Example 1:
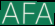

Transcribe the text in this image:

AFA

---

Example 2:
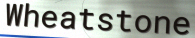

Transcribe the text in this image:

Wheatstone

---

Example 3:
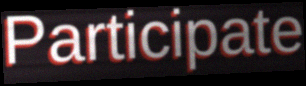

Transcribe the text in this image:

Participate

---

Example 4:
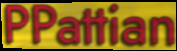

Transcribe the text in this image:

PPattian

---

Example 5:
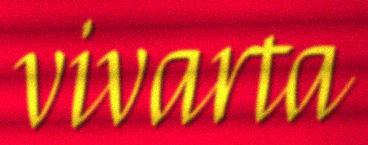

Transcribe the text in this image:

vivarta